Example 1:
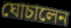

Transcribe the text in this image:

ঘোচালেন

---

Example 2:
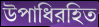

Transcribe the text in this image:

উপাধিরহিত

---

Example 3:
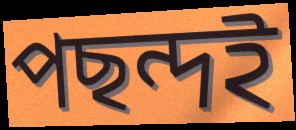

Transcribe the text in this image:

পছন্দই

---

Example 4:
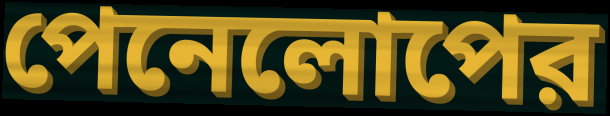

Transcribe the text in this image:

পেনেলোপের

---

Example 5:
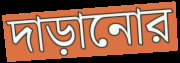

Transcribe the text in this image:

দাড়ানোর